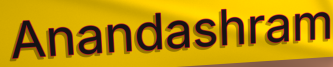
Anandashram